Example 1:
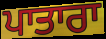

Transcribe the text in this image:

ਪਾਤਾਰਾ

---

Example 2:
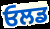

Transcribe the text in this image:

ਓਲਡ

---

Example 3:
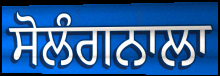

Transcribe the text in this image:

ਸੋਲੰਗਨਾਲਾ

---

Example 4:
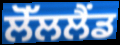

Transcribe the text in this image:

ਲੋੱਲਲੈਂਡ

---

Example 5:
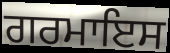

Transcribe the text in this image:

ਗਰਮਾਇਸ